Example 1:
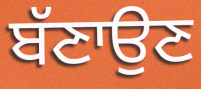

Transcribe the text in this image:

ਬੱਣਾਉਣ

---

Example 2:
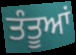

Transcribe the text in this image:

ਤੰਤੂਆਂ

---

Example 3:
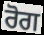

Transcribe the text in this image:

ਰੋਗ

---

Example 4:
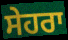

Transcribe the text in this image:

ਸੇਹਰਾ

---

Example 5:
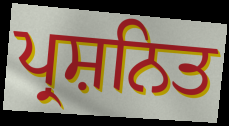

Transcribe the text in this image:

ਪ੍ਰਸ਼ਨਿਤ